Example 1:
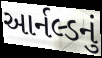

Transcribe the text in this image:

આર્નલ્ડનું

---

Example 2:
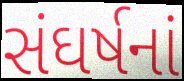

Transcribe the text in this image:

સંઘર્ષનાં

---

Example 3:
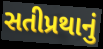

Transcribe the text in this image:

સતીપ્રથાનું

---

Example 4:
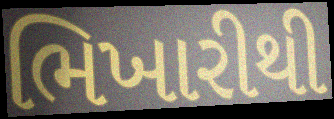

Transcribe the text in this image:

ભિખારીથી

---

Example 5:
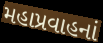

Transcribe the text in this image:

મહાપ્રવાહનાં